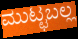
ಮುಟ್ಟಬಲ್ಲ